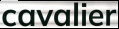
cavalier